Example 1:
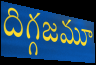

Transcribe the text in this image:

దిగ్గజమూ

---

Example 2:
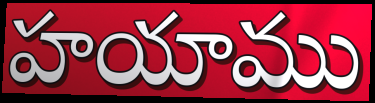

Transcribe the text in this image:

హయాము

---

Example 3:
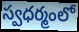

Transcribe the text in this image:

స్వధర్మంలో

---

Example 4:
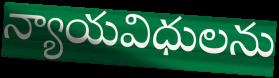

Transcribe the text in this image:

న్యాయవిధులను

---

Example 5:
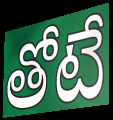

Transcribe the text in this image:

తోటే